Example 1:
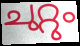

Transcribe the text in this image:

ചുറ്റും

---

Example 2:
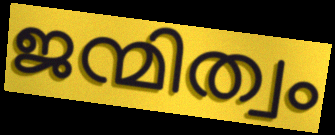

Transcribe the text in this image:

ജന്മിത്വം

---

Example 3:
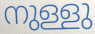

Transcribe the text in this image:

നുള്ളു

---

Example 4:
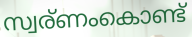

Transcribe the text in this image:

സ്വര്ണംകൊണ്ട്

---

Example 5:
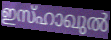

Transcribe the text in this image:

ഇസ്ഹാഖുൽ